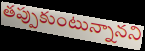
తప్పుకుంటున్నానని